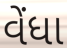
વેંધા